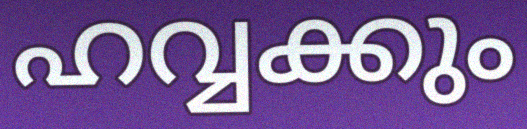
ഹവ്വക്കും